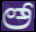
ಅ್